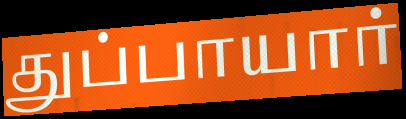
துப்பாயார்